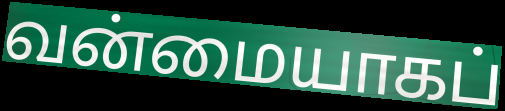
வன்மையாகப்